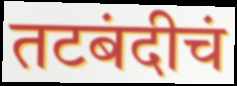
तटबंदीचं